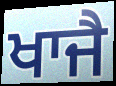
ਖਾਜੈ